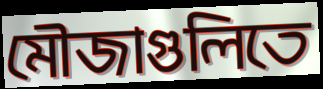
মৌজাগুলিতে